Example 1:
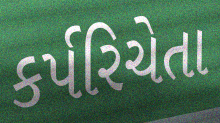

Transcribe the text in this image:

કર્પરિચેતા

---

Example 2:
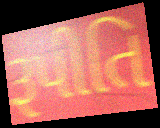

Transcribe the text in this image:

રૂપીતિ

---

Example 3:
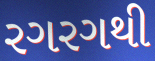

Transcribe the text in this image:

રગરગથી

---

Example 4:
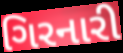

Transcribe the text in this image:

ગિરનારી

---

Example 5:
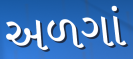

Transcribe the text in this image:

અળગાં